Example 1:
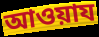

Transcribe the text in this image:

আওয়ায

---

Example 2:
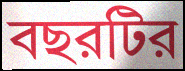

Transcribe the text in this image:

বছরটির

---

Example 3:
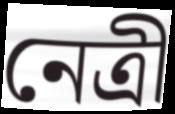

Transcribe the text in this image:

নেত্রী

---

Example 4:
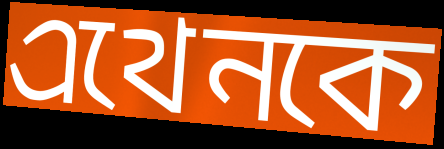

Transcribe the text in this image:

এথেনকে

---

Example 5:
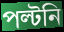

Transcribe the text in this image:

পল্টনি